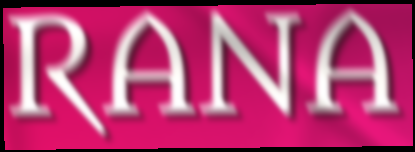
RANA